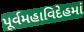
પૂર્વમહાવિદેહમાં